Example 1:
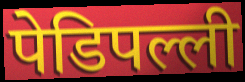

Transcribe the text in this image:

पेडिपल्ली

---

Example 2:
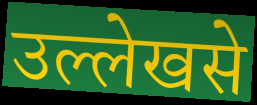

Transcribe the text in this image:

उल्लेखसे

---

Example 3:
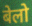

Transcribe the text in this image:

बेलो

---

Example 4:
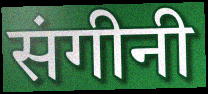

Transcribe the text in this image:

संगीनी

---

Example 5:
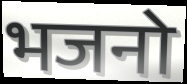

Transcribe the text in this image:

भजनो